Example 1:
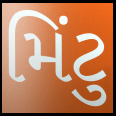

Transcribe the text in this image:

મિંટુ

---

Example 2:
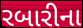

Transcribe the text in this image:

રબારીના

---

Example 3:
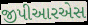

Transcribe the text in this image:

જીપીઆરએસ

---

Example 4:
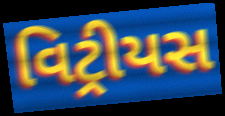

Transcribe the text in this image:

વિટ્રીયસ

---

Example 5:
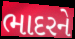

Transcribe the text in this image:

ભાદરને